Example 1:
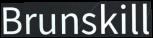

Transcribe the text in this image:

Brunskill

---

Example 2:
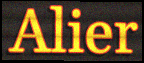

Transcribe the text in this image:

Alier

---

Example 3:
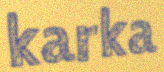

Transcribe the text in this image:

karka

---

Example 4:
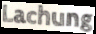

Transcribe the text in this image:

Lachung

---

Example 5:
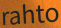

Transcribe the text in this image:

rahto